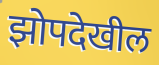
झोपदेखील